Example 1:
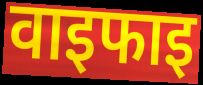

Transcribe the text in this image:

वाइफाइ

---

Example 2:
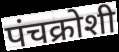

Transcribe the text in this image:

पंचक्रोशी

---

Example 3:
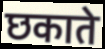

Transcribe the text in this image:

छकाते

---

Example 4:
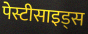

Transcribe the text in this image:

पेस्टीसाइड्स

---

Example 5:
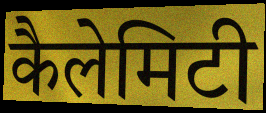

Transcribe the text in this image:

कैलेमिटी